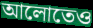
আলোতেও